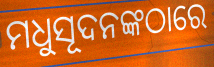
ମଧୁସୂଦନଙ୍କଠାରେ